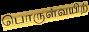
பொருள்வயிற்